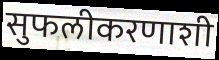
सुफलीकरणाशी